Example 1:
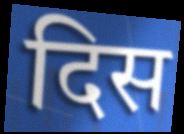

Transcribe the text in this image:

दिस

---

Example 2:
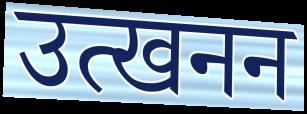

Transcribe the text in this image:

उत्खनन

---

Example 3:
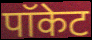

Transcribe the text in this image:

पॉकेट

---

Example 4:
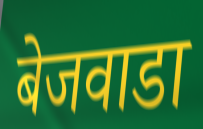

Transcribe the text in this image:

बेजवाडा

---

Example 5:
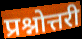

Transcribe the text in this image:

प्रश्नोत्तरी